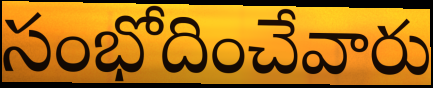
సంభోదించేవారు